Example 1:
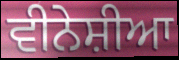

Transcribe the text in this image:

ਵੀਨੇਸ਼ੀਆ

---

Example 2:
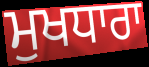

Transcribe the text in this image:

ਮੁਖਧਾਰਾ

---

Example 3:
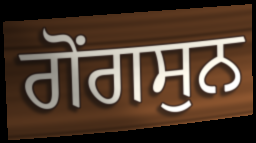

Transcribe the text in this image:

ਗੋਂਗਸੁਨ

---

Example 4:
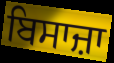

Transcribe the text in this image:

ਬਿਸਾਜ਼ਾ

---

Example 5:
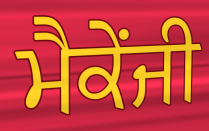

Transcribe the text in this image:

ਮੈਕੇਂਜੀ